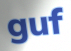
guf